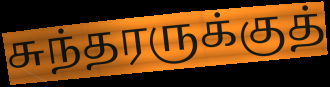
சுந்தரருக்குத்